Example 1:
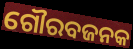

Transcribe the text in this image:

ଗୌରବଜନକ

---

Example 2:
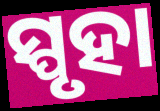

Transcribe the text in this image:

ସ୍ପୃହା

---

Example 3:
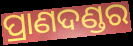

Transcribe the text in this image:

ପ୍ରାଣଦଣ୍ଡର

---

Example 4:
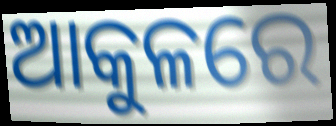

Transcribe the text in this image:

ଆକୁଳରେ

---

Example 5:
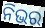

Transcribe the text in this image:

ନିଭର